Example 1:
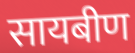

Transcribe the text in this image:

सायबीण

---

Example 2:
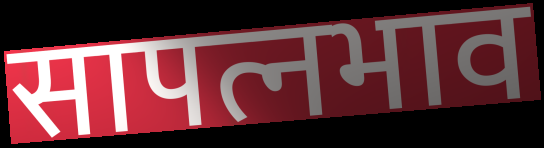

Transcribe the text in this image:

सापत्नभाव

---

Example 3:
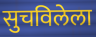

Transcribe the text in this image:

सुचविलेला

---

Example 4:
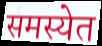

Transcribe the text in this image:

समस्येत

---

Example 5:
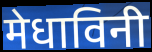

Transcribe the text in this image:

मेधाविनी